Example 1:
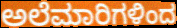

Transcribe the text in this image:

ಅಲೆಮಾರಿಗಳಿಂದ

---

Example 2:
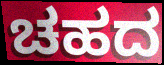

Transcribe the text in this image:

ಚಹದ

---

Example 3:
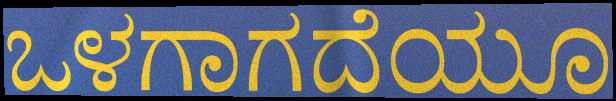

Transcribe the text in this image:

ಒಳಗಾಗದೆಯೂ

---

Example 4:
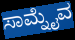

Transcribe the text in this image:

ಸಾಮ್ನೈವ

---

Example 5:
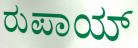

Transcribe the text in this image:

ರುಪಾಯ್